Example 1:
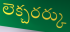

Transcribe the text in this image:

లెక్చరర్కు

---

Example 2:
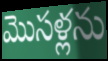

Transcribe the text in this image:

మొసళ్లను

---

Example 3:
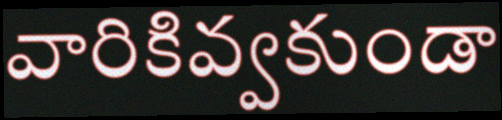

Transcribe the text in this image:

వారికివ్వకుండా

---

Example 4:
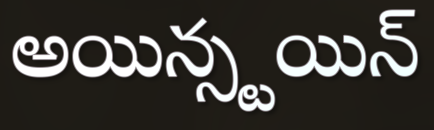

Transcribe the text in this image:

అయిన్స్టయిన్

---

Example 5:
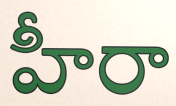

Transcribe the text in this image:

హీరా